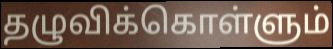
தழுவிக்கொள்ளும்